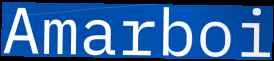
Amarboi